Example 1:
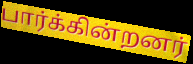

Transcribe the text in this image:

பார்க்கின்றனர்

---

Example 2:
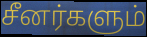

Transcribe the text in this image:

சீனர்களும்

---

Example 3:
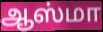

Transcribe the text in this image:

ஆஸ்மா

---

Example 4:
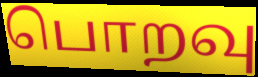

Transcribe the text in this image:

பொறவு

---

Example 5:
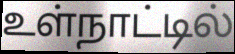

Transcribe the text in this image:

உள்நாட்டில்